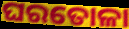
ଘରତୋଳା